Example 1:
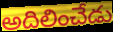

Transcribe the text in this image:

అదిలించేడు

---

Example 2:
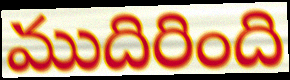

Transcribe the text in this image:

ముదిరింది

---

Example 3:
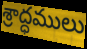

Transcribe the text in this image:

శ్రాద్ధములు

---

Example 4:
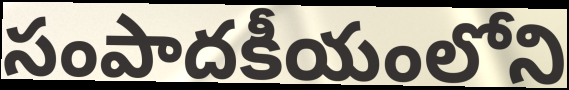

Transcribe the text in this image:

సంపాదకీయంలోని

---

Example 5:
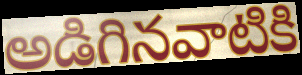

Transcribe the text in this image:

అడిగినవాటికి